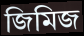
জিমিজ